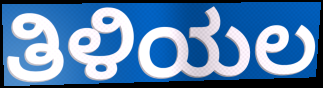
ತಿಳಿಯಲ